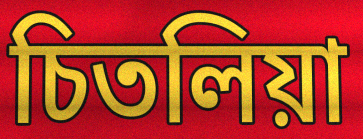
চিতলিয়া